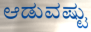
ಆಡುವಷ್ಟು